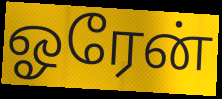
ஓரேன்